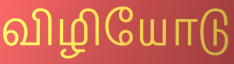
விழியோடு